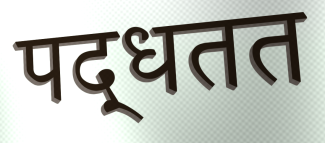
पद्धतत